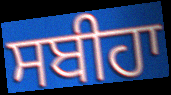
ਸਬੀਹਾ